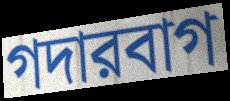
গদারবাগ